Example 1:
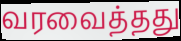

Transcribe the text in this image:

வரவைத்தது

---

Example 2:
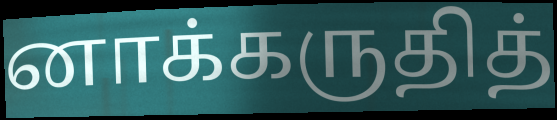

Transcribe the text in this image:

னாக்கருதித்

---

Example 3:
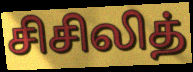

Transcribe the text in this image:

சிசிலித்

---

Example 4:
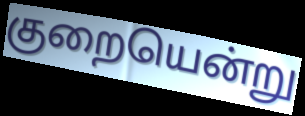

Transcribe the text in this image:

குறையென்று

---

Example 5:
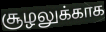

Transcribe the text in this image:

சூழலுக்காக